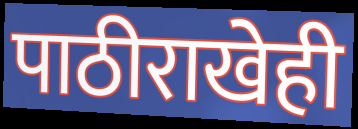
पाठीराखेही